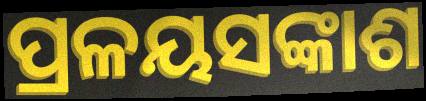
ପ୍ରଳୟସଙ୍କାଶ